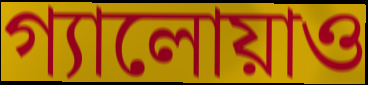
গ্যালোয়াও